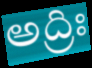
అద్రిః